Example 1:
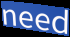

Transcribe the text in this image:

need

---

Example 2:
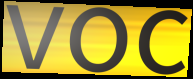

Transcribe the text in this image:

voc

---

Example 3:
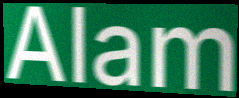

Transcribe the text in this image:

Alam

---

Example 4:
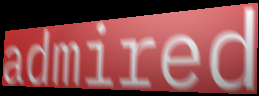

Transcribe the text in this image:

admired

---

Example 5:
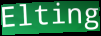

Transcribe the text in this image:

Elting